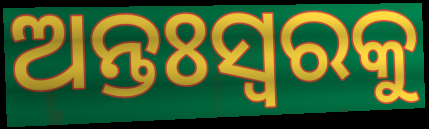
ଅନ୍ତଃସ୍ୱରକୁ